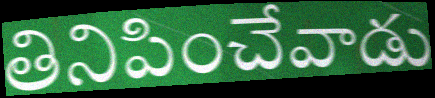
తినిపించేవాడు